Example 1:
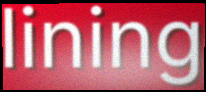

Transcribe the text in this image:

lining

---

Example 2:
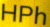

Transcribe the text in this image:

HPh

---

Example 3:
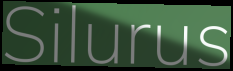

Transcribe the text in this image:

Silurus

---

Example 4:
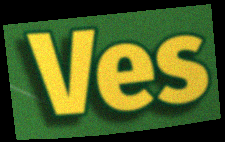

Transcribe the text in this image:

Ves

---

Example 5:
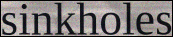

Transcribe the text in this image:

sinkholes